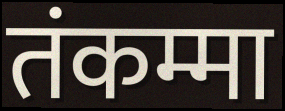
तंकम्मा